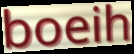
boeih